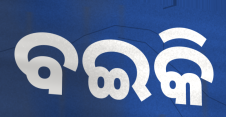
ବଇକି